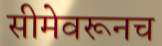
सीमेवरूनच